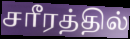
சரீரத்தில்